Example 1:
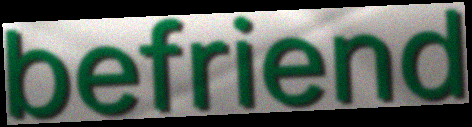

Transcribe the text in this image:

befriend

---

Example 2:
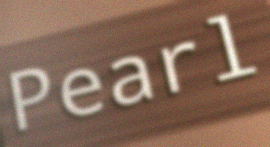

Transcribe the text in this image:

Pearl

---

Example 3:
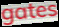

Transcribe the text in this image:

gates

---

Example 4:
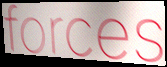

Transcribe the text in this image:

forces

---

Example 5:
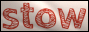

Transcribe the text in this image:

stow